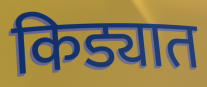
किड्यात